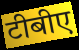
टीबीए